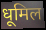
धूमिल